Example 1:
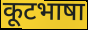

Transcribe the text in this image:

कूटभाषा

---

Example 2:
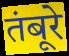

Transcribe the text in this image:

तंबूरे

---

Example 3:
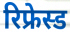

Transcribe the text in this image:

रिफ्रेस्ड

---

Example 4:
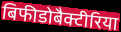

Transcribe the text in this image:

बिफीडोबैक्टीरिया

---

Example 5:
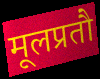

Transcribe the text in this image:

मूलप्रतौ